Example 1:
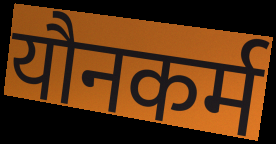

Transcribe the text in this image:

यौनकर्म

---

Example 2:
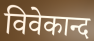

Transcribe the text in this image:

विवेकान्द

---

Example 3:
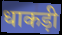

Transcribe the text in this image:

धाकड़ी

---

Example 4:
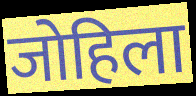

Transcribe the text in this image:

जोहिला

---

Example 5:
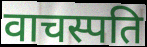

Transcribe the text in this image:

वाचस्पति